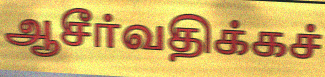
ஆசீர்வதிக்கச்